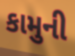
કામુની